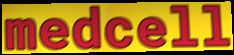
medcell